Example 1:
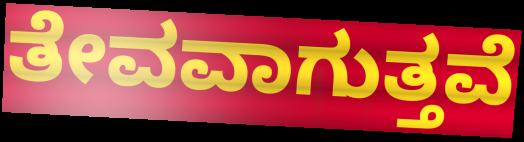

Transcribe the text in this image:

ತೇವವಾಗುತ್ತವೆ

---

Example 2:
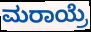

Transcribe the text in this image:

ಮರಾಯ್ರೆ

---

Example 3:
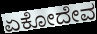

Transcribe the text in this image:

ಏಕೋದೇವ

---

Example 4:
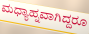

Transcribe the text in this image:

ಮಧ್ಯಾಹ್ನವಾಗಿದ್ದರೂ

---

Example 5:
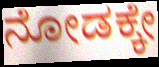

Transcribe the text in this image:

ನೋಡಕ್ಕೇ